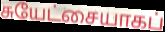
சுயேட்சையாகப்